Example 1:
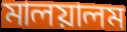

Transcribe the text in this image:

মালয়ালম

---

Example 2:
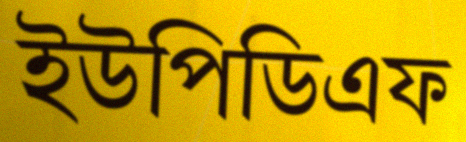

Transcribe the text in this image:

ইউপিডিএফ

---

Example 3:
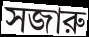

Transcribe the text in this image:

সজারু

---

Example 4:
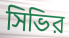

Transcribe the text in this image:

সিভির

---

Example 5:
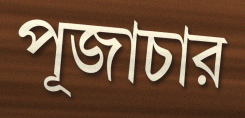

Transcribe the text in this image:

পূজাচার